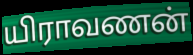
யிராவணன்